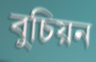
বুচিয়ন